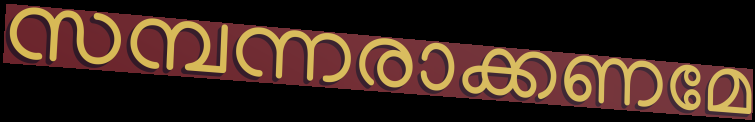
സമ്പന്നരാക്കണമേ